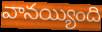
వానయ్యింది